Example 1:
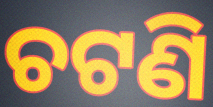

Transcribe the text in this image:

ଚଟଣି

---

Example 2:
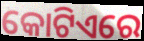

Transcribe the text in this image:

କୋଟିଏରେ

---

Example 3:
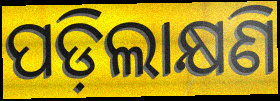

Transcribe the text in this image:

ପଡ଼ିଲାକ୍ଷଣି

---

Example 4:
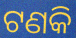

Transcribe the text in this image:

ଟଣକି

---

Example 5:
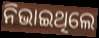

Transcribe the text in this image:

ନିଭାଇଥିଲେ